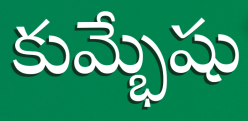
కుమ్భేషు